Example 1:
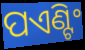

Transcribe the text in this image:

ପଏଣ୍ଟିଂ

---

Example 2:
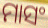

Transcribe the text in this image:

ମାସଂ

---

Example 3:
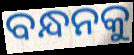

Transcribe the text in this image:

ବନ୍ଧନକୁ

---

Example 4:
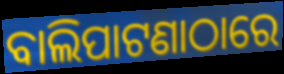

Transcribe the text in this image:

ବାଲିପାଟଣାଠାରେ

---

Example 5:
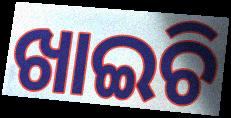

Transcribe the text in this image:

ଖାଇଚି